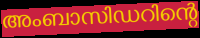
അംബാസിഡറിന്റെ